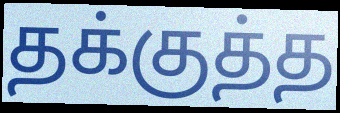
தக்குத்த